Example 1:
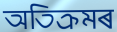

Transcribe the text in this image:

অতিক্ৰমৰ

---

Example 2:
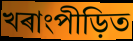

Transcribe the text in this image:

খৰাংপীড়িত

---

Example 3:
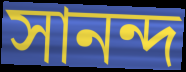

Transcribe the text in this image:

সানন্দ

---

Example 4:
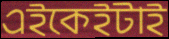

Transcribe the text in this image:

এইকেইটাই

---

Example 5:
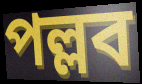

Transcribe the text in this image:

পল্লব